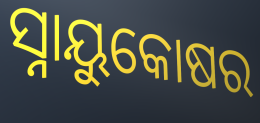
ସ୍ନାୟୁକୋଷର